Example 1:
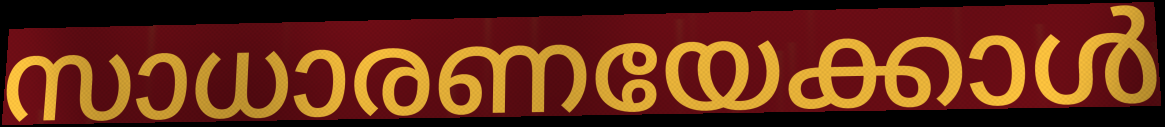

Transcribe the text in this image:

സാധാരണയേക്കാൾ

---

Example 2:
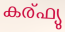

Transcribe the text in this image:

കര്ഫ്യു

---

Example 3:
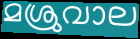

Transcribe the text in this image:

മശ്രുവാല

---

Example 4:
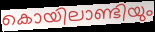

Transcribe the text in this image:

കൊയിലാണ്ടിയും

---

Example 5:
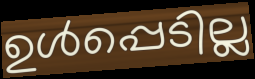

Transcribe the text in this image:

ഉൾപ്പെടില്ല